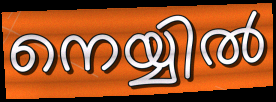
നെയ്യിൽ